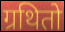
ग्रथितो